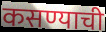
कसण्याची